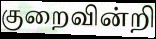
குறைவின்றி